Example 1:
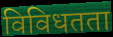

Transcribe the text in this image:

विविधतता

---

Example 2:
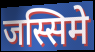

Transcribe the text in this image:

जस्सिमे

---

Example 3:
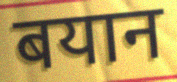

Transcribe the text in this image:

बयान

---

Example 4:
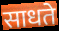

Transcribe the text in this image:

साधते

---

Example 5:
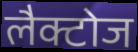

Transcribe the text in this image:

लैक्टोज